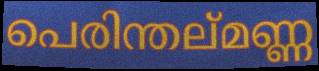
പെരിന്തല്മണ്ണ